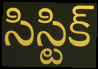
సిస్టిక్